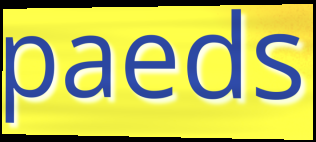
paeds